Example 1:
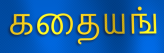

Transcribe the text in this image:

கதையங்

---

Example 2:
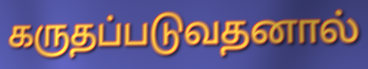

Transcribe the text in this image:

கருதப்படுவதனால்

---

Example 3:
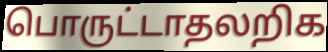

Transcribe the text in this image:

பொருட்டாதலறிக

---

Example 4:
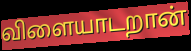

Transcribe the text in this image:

விளையாடறான்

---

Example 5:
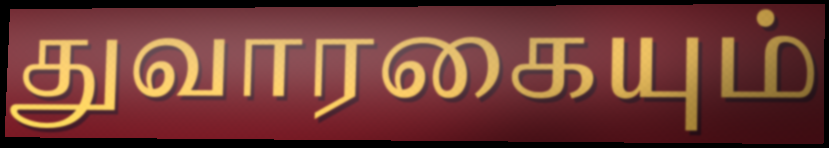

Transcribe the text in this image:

துவாரகையும்